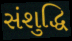
સંશુદ્ધિ